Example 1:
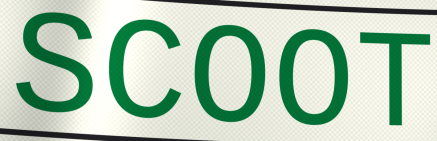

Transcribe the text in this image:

SCOOT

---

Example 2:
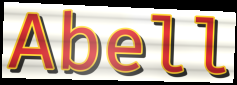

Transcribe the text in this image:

Abell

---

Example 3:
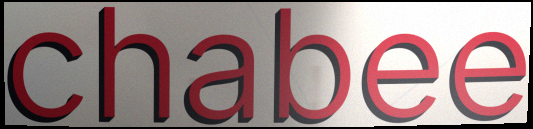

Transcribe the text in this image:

chabee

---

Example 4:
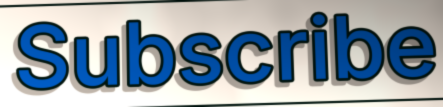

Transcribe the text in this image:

Subscribe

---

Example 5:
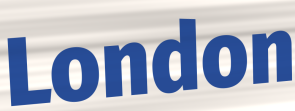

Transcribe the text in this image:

London